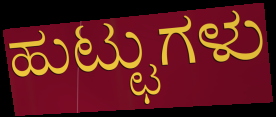
ಹುಟ್ಟುಗಳು